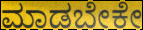
ಮಾಡಬೇಕೇ